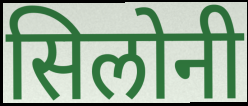
सिलोनी